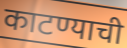
काटण्याची